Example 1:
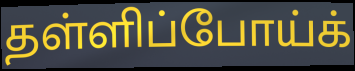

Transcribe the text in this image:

தள்ளிப்போய்க்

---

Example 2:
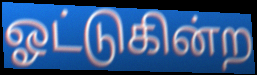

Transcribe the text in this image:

ஓட்டுகின்ற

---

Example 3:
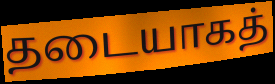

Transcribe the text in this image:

தடையாகத்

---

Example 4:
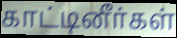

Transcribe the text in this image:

காட்டினீர்கள்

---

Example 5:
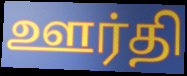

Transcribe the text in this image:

ஊர்தி